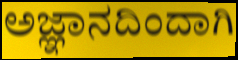
ಅಜ್ಞಾನದಿಂದಾಗಿ